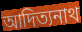
আদিত্যনাথ